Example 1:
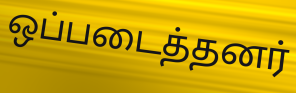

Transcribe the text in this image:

ஒப்படைத்தனர்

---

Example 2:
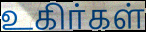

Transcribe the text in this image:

உகிர்கள்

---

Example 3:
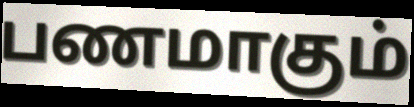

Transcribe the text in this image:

பணமாகும்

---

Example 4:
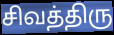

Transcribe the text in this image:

சிவத்திரு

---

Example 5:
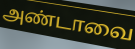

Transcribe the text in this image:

அண்டாவை